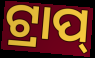
ଟ୍ରାପ୍